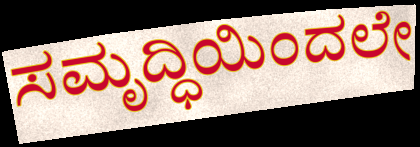
ಸಮೃದ್ಧಿಯಿಂದಲೇ